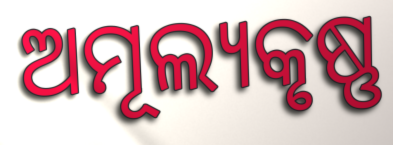
ଅମୂଲ୍ୟକୃଷ୍ଣ